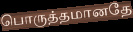
பொருத்தமானதே